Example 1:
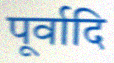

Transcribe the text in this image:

पूर्वादि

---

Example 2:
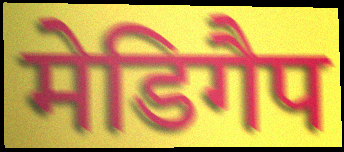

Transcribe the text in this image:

मेडिगैप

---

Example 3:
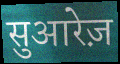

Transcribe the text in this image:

सुआरेज़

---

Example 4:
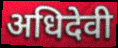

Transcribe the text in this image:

अधिदेवी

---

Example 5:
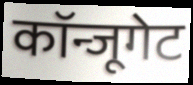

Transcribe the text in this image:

कॉन्जूगेट